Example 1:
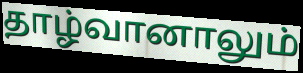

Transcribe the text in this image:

தாழ்வானாலும்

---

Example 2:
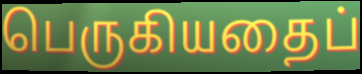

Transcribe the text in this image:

பெருகியதைப்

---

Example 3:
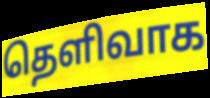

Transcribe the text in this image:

தெளிவாக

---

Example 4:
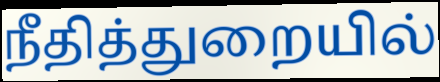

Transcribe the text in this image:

நீதித்துறையில்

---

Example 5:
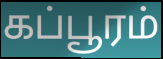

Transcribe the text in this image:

கப்பூரம்